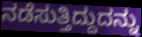
ನಡೆಸುತ್ತಿದ್ದುದನ್ನು